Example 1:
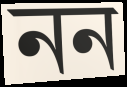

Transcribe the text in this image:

নন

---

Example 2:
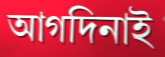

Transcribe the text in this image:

আগদিনাই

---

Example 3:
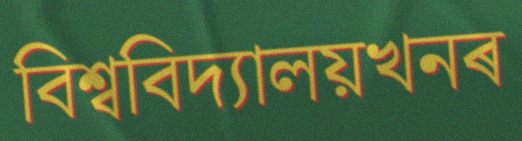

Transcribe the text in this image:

বিশ্ববিদ্যালয়খনৰ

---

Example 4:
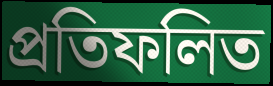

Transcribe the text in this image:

প্ৰতিফলিত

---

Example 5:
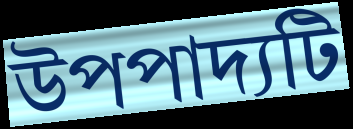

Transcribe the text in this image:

উপপাদ্যটি